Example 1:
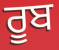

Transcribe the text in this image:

ਰੂਬ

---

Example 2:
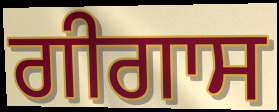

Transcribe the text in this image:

ਗੀਗਾਸ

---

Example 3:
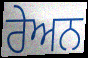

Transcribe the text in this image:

ਰੇਅਨ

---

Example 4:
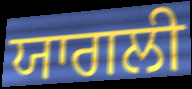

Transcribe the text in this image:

ਯਾਗਲੀ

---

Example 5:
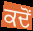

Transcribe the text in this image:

ਕਦੋਂ